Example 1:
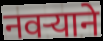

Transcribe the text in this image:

नवऱ्याने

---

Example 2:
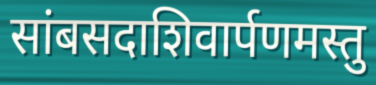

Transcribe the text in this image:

सांबसदाशिवार्पणमस्तु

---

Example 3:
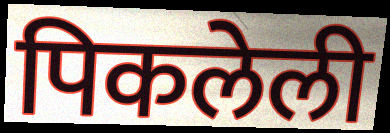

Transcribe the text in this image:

पिकलेली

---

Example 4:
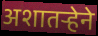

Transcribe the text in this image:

अशातऱ्हेने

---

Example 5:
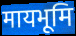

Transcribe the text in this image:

मायभूमि